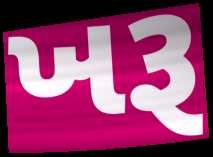
ખરૂ